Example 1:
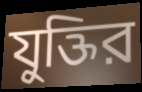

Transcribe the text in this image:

যুক্তির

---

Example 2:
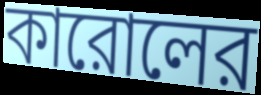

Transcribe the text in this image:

কারোলের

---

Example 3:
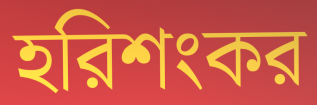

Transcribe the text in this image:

হরিশংকর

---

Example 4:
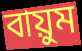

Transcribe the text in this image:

বায়ুম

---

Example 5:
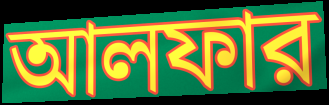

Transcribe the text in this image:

আলফার